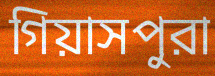
গিয়াসপুরা